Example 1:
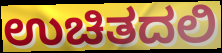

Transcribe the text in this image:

ಉಚಿತದಲಿ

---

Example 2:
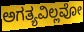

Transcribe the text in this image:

ಅಗತ್ಯವಿಲ್ಲವೋ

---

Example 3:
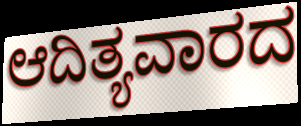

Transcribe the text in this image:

ಆದಿತ್ಯವಾರದ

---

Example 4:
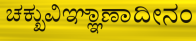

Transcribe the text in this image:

ಚಕ್ಖುವಿಞ್ಞಾಣಾದೀನಂ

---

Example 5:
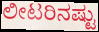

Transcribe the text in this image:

ಲೀಟರಿನಷ್ಟು